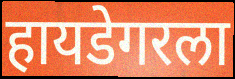
हायडेगरला